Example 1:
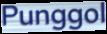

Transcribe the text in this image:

Punggol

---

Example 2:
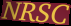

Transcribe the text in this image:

NRSC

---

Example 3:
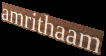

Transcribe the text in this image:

amrithaam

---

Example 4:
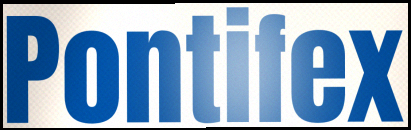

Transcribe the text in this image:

Pontifex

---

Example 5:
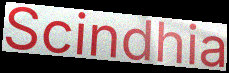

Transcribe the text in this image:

Scindhia